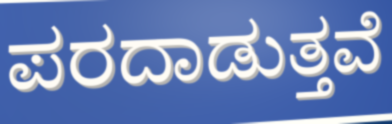
ಪರದಾಡುತ್ತವೆ